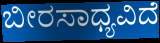
ಬೀರಸಾಧ್ಯವಿದೆ